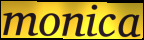
monica